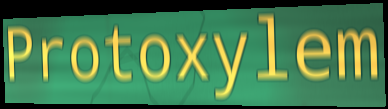
Protoxylem